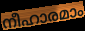
നീഹാരമാം